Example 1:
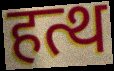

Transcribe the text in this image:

हत्थ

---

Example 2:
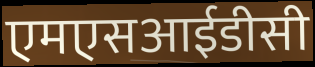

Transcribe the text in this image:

एमएसआईडीसी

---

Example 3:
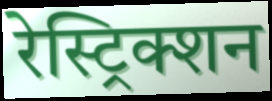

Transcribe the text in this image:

रेस्ट्रिक्शन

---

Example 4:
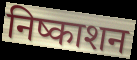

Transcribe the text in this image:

निष्काशन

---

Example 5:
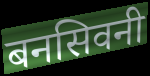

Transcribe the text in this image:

बनसिवनी